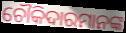
ଚୌକିଦାରମାନଙ୍କ